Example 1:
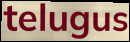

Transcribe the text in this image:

telugus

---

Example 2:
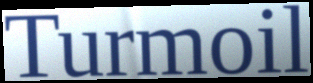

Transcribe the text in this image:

Turmoil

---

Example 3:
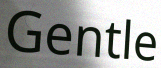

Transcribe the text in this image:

Gentle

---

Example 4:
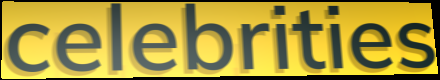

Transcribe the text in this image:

celebrities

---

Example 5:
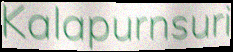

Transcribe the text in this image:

Kalapurnsuri